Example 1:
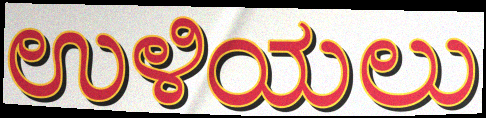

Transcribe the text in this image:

ಉಳಿಯಲು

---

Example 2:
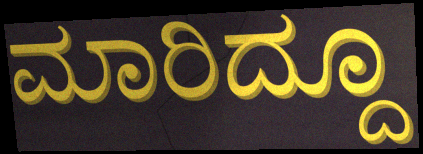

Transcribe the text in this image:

ಮಾರಿದ್ದೂ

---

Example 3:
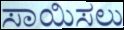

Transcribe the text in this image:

ಸಾಯಿಸಲು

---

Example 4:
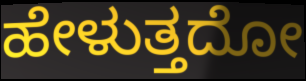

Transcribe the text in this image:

ಹೇಳುತ್ತದೋ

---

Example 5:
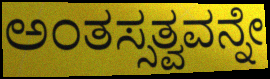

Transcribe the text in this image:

ಅಂತಸ್ಸತ್ವವನ್ನೇ